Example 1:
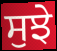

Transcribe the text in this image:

ਸੁਝੇ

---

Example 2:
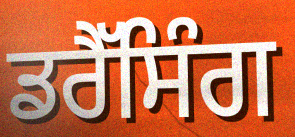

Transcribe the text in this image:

ਡਰੈੱਸਿੰਗ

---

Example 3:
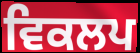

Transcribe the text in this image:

ਵਿਕਲਪ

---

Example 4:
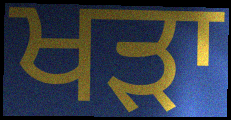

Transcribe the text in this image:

ਖੜਾ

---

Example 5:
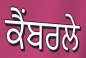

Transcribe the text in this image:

ਕੈਂਬਰਲੇ